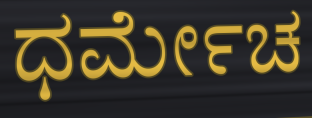
ಧರ್ಮೇಚ